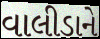
વાલીડાને